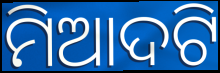
ମିଆଦଟି